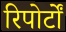
रिपोर्टों